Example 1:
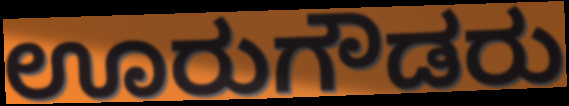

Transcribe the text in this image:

ಊರುಗೌಡರು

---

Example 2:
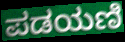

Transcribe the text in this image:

ಪಡಯಣಿ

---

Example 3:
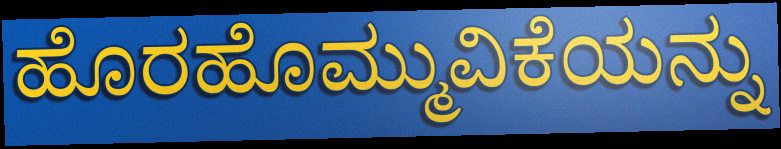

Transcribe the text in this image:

ಹೊರಹೊಮ್ಮುವಿಕೆಯನ್ನು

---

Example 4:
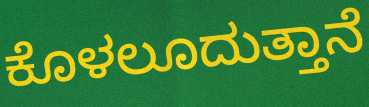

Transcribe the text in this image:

ಕೊಳಲೂದುತ್ತಾನೆ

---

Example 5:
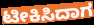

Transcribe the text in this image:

ಟೀಕಿಸಿದಾಗ